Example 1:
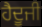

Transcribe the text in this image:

ਹੈਦੂਜੀ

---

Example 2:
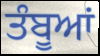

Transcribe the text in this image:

ਤੰਬੂਆਂ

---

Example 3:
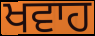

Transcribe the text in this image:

ਖਵਾਹ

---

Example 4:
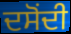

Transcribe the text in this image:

ਦਸੋਂਦੀ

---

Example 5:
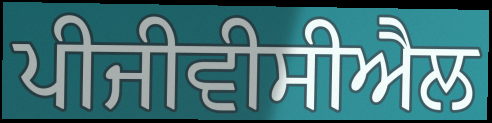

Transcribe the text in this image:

ਪੀਜੀਵੀਸੀਐਲ